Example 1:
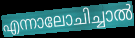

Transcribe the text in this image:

എന്നാലോചിച്ചാൽ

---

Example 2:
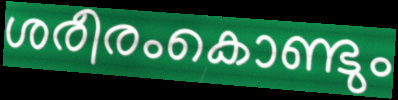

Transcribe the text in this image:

ശരീരംകൊണ്ടും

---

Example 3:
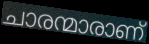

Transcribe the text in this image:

ചാരന്മാരാണ്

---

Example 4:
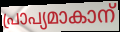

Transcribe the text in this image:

പ്രാപ്യമാകാന്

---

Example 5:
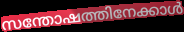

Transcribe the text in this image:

സന്തോഷത്തിനേക്കാൾ